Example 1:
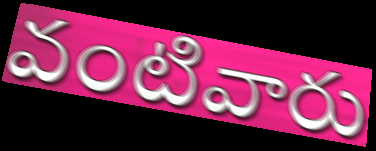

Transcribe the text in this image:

వంటివారు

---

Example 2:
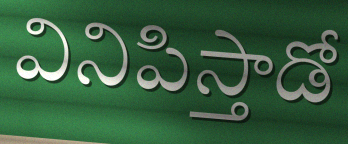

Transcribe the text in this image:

వినిపిస్తాడో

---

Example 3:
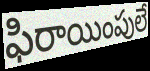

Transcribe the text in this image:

ఫిరాయింపులే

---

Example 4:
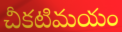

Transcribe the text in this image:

చీకటిమయం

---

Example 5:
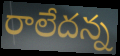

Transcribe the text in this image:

రాలేదన్న